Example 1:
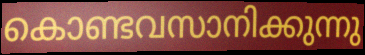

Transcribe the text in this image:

കൊണ്ടവസാനിക്കുന്നു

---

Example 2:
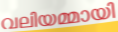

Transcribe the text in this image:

വലിയമ്മായി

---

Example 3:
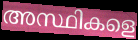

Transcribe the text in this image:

അസ്ഥികളെ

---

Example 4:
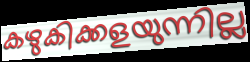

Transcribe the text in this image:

കഴുകിക്കളയുന്നില്ല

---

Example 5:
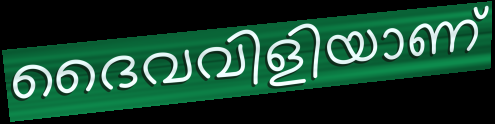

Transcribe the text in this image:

ദൈവവിളിയാണ്